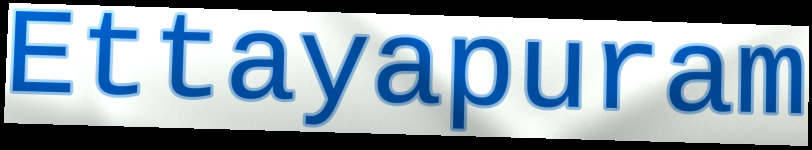
Ettayapuram